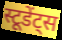
स्टूडेंट्स